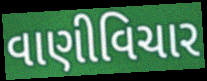
વાણીવિચાર